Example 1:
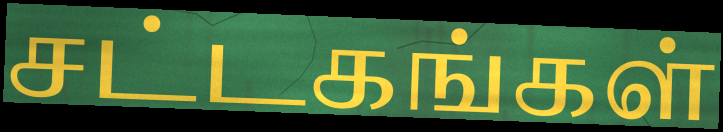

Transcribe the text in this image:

சட்டகங்கள்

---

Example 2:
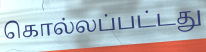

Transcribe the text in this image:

கொல்லப்பட்டது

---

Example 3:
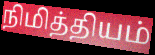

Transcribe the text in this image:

நிமித்தியம்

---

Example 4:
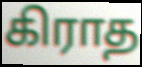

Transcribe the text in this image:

கிராத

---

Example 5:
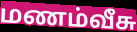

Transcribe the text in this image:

மணம்வீசு